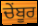
ਚੇਂਬੂਰ